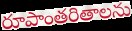
రూపాంతరితాలను